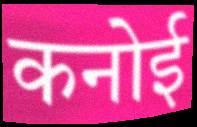
कनोई